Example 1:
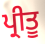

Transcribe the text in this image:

ਪ੍ਰੀਤੂ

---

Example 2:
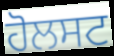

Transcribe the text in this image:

ਹੋਲਸਟ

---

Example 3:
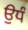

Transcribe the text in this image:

ਉਧੰ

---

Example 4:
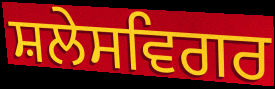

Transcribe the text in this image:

ਸ਼ਲੇਸਵਿਗਰ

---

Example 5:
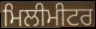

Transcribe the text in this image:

ਮਿਲੀਮੀਟਰ